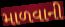
માળવાની